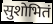
सुशोभितं